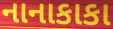
નાનાકાકા